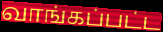
வாங்கப்பட்ட